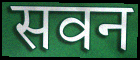
सवन